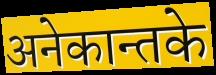
अनेकान्तके